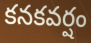
కనకవర్షం